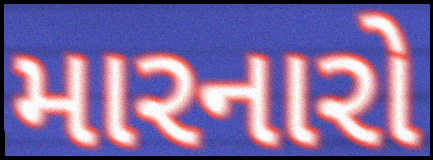
મારનારો